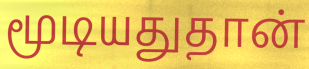
மூடியதுதான்